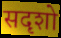
सदृशो